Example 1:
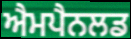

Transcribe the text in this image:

ਐਮਪੈਨਲਡ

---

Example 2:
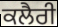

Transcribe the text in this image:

ਕਲੈਰੀ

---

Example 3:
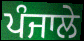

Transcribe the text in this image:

ਪੰਜਾਲੇ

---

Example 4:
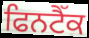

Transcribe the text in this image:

ਫਿਨਟੈੱਕ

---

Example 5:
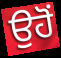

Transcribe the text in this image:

ਉਹੋਂ